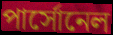
পার্সোনেল